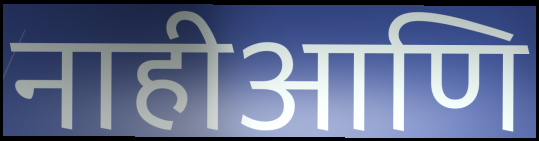
नाहीआणि